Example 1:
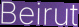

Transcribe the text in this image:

Beirut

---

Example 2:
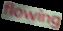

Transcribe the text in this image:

flowing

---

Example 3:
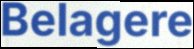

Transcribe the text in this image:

Belagere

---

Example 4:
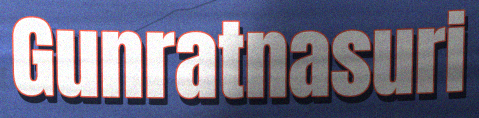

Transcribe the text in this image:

Gunratnasuri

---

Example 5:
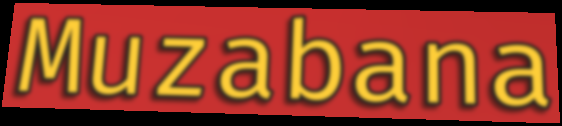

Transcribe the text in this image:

Muzabana